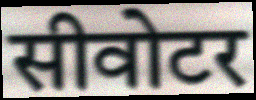
सीवोटर